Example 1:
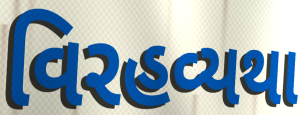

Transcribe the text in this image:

વિરહવ્યથા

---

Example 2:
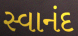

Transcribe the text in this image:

સ્વાનંદ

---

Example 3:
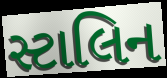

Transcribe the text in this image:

સ્ટાલિન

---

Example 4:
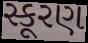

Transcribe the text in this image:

સ્કૂરણ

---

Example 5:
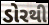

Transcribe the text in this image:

ડોરથી